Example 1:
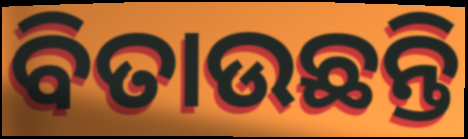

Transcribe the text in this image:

ବିତାଉଛନ୍ତି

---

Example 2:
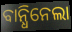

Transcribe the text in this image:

ବାନ୍ଧିନେଲା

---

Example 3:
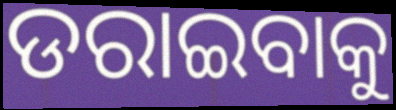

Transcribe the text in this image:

ଡରାଇବାକୁ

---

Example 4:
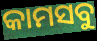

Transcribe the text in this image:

କାମସବୁ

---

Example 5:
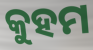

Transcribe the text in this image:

କୁହମ